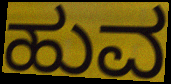
ಹುವ